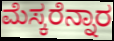
ಮೆಸ್ಕರೆನ್ನಾರ